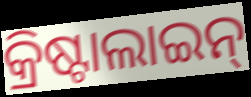
କ୍ରିଷ୍ଟାଲାଇନ୍